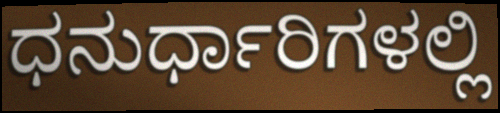
ಧನುರ್ಧಾರಿಗಳಲ್ಲಿ